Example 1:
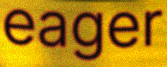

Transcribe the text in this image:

eager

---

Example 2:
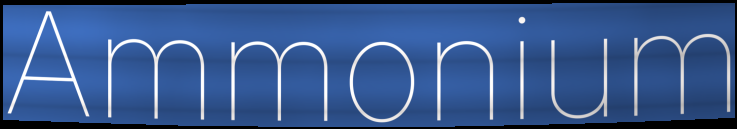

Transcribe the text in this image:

Ammonium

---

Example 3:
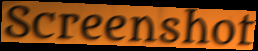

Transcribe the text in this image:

Screenshot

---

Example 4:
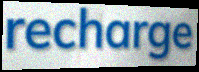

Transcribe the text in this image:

recharge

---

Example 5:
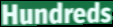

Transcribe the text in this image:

Hundreds